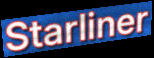
Starliner